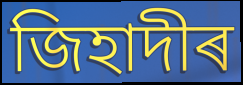
জিহাদীৰ